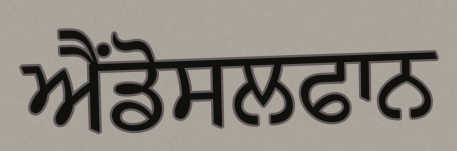
ਐਂਡੋਸਲਫਾਨ